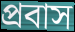
প্রবাস